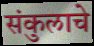
संकुलाचे